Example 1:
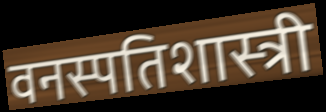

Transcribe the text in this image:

वनस्पतिशास्त्री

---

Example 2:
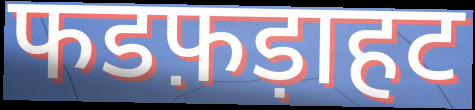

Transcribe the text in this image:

फडफ़ड़ाहट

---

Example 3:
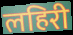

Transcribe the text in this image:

लहिरी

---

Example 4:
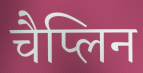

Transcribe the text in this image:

चैप्लिन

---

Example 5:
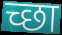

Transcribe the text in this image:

च्छा